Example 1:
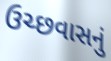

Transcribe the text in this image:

ઉચ્છવાસનું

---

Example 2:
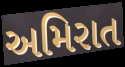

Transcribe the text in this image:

અમિરાત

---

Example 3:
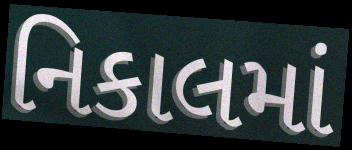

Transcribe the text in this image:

નિકાલમાં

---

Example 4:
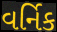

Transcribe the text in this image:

વર્નિક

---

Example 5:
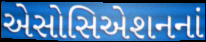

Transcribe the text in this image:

એસોસિએશનનાં